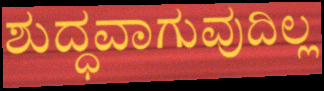
ಶುದ್ಧವಾಗುವುದಿಲ್ಲ